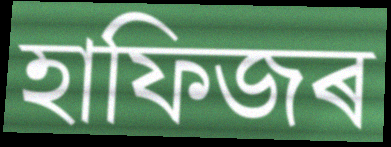
হাফিজৰ